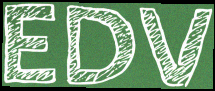
EDV